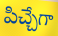
పిచ్చేగా